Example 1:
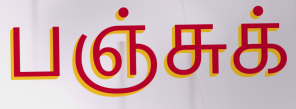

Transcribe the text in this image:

பஞ்சுக்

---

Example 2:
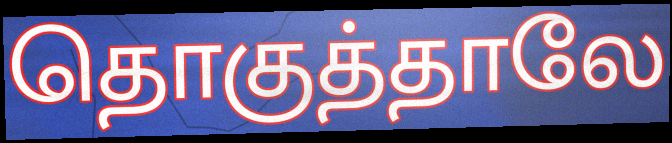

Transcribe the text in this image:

தொகுத்தாலே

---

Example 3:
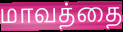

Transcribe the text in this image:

மாவத்தை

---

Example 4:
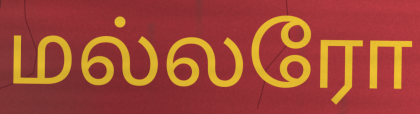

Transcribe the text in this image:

மல்லரோ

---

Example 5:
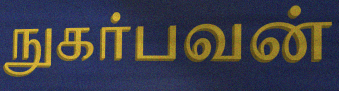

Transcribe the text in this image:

நுகர்பவன்